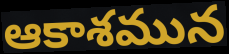
ఆకాశమున